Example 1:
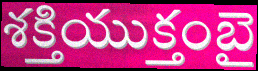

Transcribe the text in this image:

శక్తియుక్తంబై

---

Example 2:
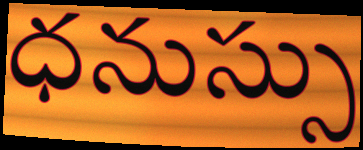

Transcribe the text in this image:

ధనుస్సు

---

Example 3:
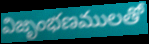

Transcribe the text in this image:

విజృంభణములతో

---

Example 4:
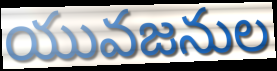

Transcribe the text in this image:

యువజనుల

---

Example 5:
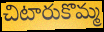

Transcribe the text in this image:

చిటారుకొమ్మ